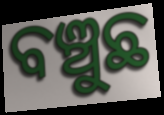
ବଞ୍ଚୁଛ